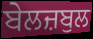
ਬੇਲਜ਼ਬੁਲ